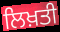
ਲਿਖ਼ਤੀ